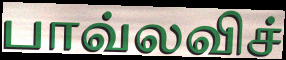
பாவ்லவிச்